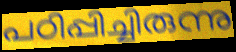
പഠിപ്പിച്ചിരുന്നു